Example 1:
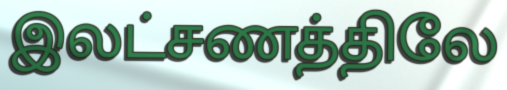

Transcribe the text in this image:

இலட்சணத்திலே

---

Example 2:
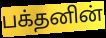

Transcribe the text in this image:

பக்தனின்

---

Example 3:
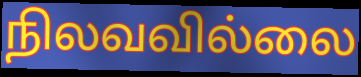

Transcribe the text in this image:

நிலவவில்லை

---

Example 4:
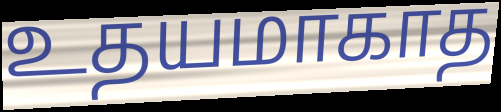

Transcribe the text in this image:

உதயமாகாத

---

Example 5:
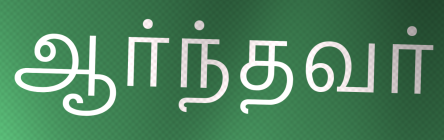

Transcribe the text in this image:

ஆர்ந்தவர்